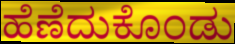
ಹೆಣೆದುಕೊಂಡು